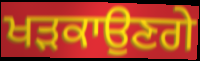
ਖੜਕਾਉਣਗੇ